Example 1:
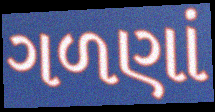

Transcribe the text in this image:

ગળણાં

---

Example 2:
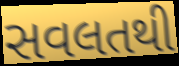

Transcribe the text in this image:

સવલતથી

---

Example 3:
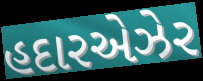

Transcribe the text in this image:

હદારએઝેર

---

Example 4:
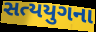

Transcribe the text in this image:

સત્યયુગના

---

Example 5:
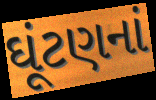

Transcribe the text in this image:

ઘૂંટણનાં